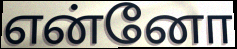
என்னோ